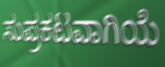
ಸುಪ್ರಕಟವಾಗಿಯೆ